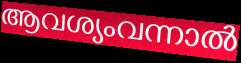
ആവശ്യംവന്നാൽ